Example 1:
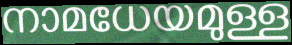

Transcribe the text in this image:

നാമധേയമുള്ള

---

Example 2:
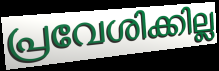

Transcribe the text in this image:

പ്രവേശിക്കില്ല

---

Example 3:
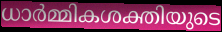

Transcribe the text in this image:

ധാർമ്മികശക്തിയുടെ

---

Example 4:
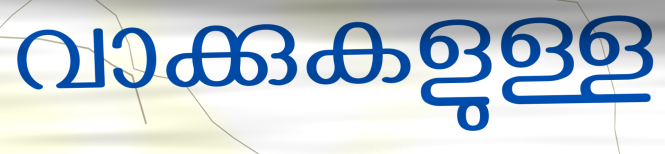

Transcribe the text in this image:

വാക്കുകളുള്ള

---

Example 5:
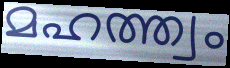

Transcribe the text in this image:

മഹത്ത്വം